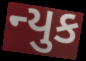
ન્યુક